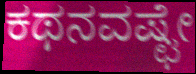
ಕಥನವಷ್ಟೇ